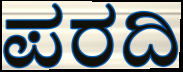
ಪರದಿ